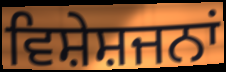
ਵਿਸ਼ੇਸ਼ਜਨਾਂ